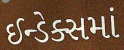
ઈન્ડેક્સમાં